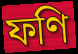
ফণি